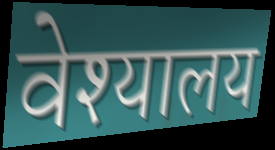
वेश्यालय